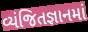
વ્યંજિતજ્ઞાનમાં